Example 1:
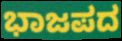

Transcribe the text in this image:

ಭಾಜಪದ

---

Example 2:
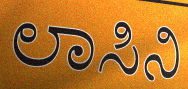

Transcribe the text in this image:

ಲಾಸಿನಿ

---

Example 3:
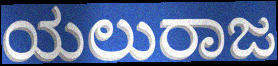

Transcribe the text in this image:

ಯಲುರಾಜ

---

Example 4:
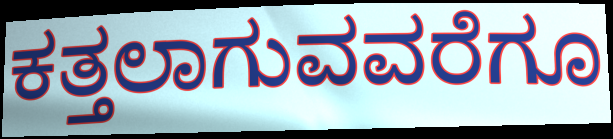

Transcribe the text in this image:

ಕತ್ತಲಾಗುವವರೆಗೂ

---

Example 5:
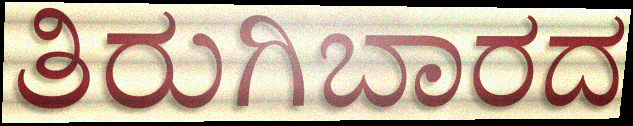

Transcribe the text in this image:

ತಿರುಗಿಬಾರದ